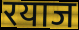
रयाज